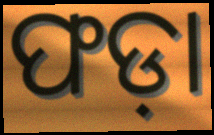
ଫଡ଼ା